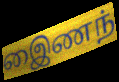
இைணந்